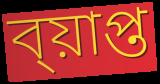
ব্য়াপ্ত